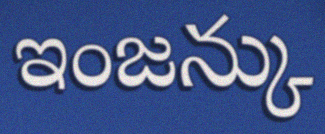
ఇంజన్కు